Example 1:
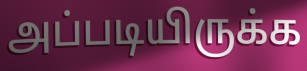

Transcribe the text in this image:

அப்படியிருக்க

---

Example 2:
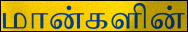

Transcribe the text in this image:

மான்களின்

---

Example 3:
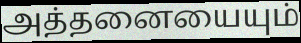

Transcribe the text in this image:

அத்தனையையும்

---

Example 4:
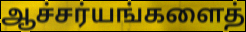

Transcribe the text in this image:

ஆச்சர்யங்களைத்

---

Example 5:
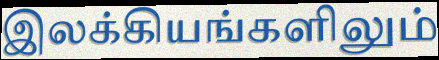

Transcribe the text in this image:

இலக்கியங்களிலும்